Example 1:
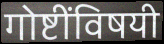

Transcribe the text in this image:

गोष्टींविषयी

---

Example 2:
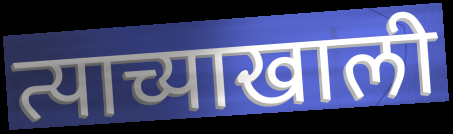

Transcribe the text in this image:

त्याच्याखाली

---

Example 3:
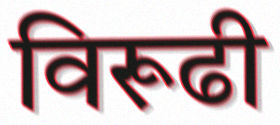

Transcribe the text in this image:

विरूढी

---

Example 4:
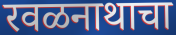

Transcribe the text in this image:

रवळनाथाचा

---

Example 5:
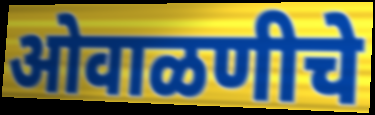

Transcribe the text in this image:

ओवाळणीचे